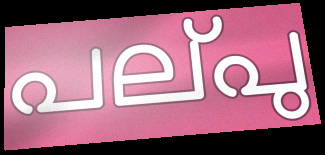
പല്‌പു